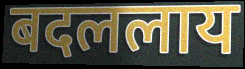
बदललाय